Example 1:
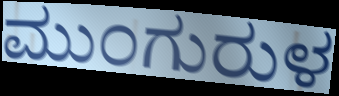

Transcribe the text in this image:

ಮುಂಗುರುಳ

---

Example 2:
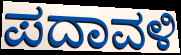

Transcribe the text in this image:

ಪದಾವಳಿ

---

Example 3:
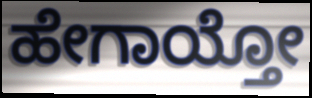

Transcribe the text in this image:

ಹೇಗಾಯ್ತೋ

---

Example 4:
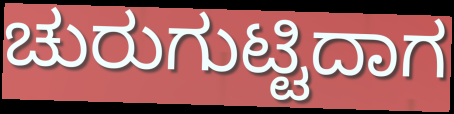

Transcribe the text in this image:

ಚುರುಗುಟ್ಟಿದಾಗ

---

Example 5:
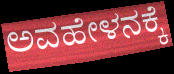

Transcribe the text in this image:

ಅವಹೇಳನಕ್ಕೆ